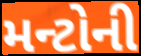
મન્ટોની